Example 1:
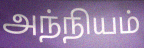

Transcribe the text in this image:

அந்நியம்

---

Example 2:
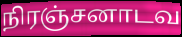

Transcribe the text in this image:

நிரஞ்சனாடவ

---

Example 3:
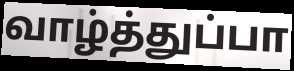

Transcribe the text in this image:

வாழ்த்துப்பா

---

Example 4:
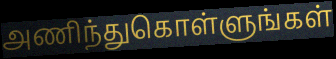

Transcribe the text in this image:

அணிந்துகொள்ளுங்கள்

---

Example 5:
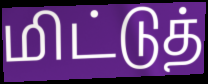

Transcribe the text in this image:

மிட்டுத்